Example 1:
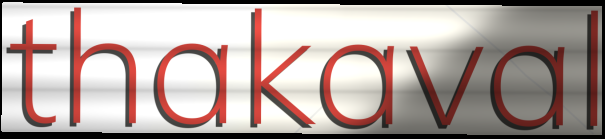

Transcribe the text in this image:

thakaval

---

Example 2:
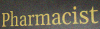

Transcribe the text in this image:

Pharmacist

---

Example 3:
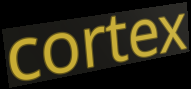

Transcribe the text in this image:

cortex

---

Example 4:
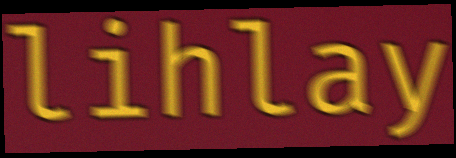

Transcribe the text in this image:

lihlay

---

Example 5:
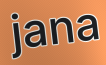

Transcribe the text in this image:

jana